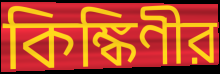
কিঙ্কিণীর